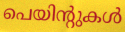
പെയിന്റുകൾ